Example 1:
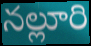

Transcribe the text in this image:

నల్లూరి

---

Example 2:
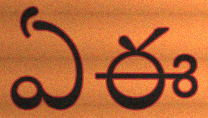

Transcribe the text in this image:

ఏఈ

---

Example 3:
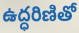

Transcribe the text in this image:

ఉద్ధరిణితో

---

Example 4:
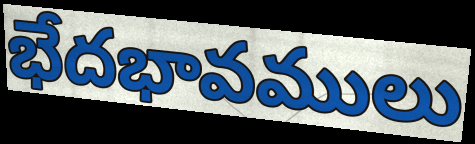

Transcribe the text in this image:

భేదభావములు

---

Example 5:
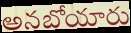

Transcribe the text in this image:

అనబోయారు